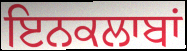
ਇਨਕਲਾਬਾਂ